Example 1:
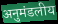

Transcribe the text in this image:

अनुमंडलीय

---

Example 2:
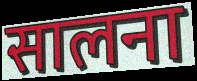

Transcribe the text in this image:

सालना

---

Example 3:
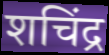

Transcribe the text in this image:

शचिंद्र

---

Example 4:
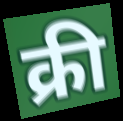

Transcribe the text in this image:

क्री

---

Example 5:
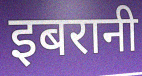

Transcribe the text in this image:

इबरानी